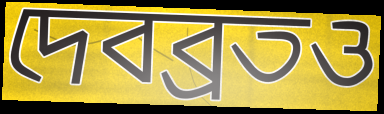
দেবব্রতও